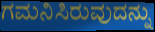
ಗಮನಿಸಿರುವುದನ್ನು